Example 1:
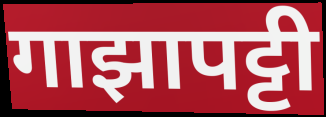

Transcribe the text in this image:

गाझापट्टी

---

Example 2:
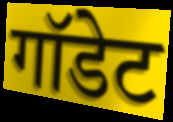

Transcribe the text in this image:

गॉडेट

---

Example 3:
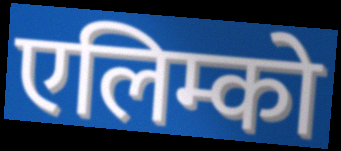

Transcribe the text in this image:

एलिम्को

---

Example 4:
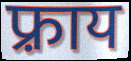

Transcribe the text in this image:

फ़्राय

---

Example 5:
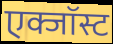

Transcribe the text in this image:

एक्जॉस्ट